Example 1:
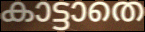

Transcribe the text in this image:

കാട്ടാതെ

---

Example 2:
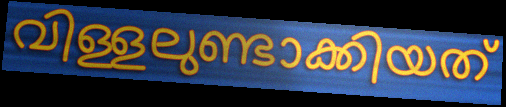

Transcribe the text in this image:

വിള്ളലുണ്ടാക്കിയത്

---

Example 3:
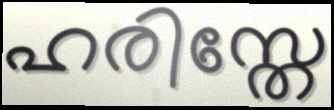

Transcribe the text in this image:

ഹരിസ്തേ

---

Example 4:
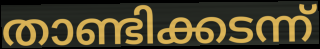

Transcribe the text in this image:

താണ്ടിക്കടന്ന്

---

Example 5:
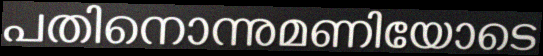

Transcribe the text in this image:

പതിനൊന്നുമണിയോടെ